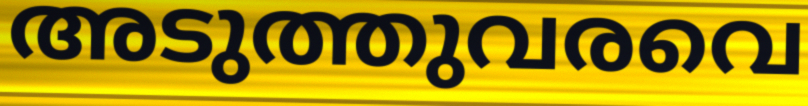
അടുത്തുവരവെ